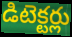
డిటెక్టర్లు